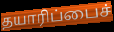
தயாரிப்பைச்